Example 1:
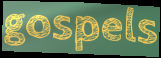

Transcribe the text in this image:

gospels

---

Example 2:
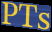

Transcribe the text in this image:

PTs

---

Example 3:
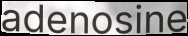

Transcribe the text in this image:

adenosine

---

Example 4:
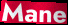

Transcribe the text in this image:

Mane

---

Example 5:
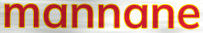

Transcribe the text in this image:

mannane